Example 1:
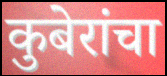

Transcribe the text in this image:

कुबेरांचा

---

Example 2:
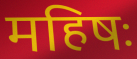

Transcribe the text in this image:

महिषः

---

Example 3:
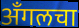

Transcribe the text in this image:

अँगलचा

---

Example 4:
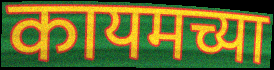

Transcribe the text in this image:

कायमच्या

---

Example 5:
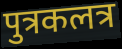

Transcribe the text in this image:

पुत्रकलत्र